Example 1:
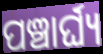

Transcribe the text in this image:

ପଞ୍ଚାର୍ଘ୍ୟ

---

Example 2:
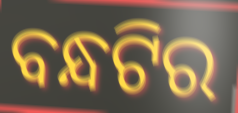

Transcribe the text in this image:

ବନ୍ଧଟିର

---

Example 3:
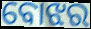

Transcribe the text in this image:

ବୋଝର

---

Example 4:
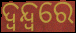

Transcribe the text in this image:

ଦ୍ୱନ୍ଦ୍ବରେ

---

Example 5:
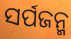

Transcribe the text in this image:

ସର୍ପଜନ୍ମ